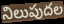
నిలుపుదల